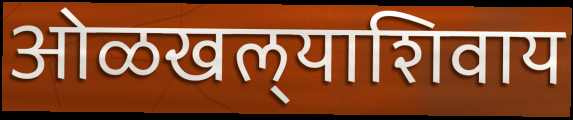
ओळखल्याशिवाय